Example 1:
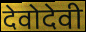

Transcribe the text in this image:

देवोदेवी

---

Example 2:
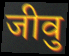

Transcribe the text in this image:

जीवु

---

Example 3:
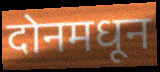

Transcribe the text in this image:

दोनमधून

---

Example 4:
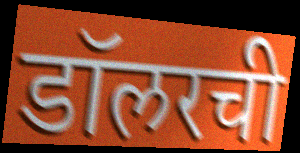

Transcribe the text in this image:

डॉलरची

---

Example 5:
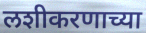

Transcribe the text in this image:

लशीकरणाच्या